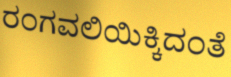
ರಂಗವಲಿಯಿಕ್ಕಿದಂತೆ